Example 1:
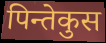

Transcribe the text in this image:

पिन्तेकुस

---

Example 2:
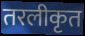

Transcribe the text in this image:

तरलीकृत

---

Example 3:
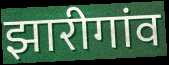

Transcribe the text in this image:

झारीगांव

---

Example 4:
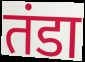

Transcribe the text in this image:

तंडा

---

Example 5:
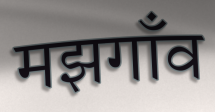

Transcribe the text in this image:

मझगाँव